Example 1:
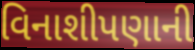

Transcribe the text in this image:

વિનાશીપણાની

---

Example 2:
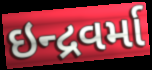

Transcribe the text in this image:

ઇન્દ્રવર્મા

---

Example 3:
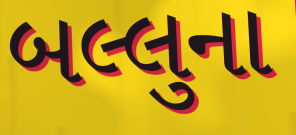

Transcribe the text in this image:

બલ્લુના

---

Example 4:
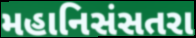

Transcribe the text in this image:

મહાનિસંસતરા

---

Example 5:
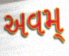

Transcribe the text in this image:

અવમ્